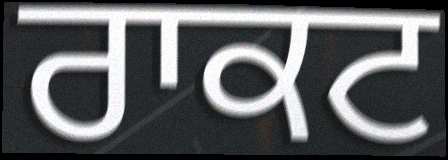
ਰਾਕਟ